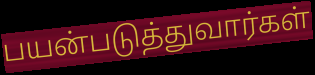
பயன்படுத்துவார்கள்